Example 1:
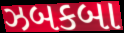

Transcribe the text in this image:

ઝબકબા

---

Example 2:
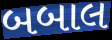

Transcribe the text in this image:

બબાલ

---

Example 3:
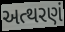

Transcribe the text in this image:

અત્થરણં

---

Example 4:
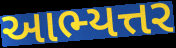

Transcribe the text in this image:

આભ્યત્તર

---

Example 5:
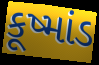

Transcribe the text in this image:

કૂષ્માંડ